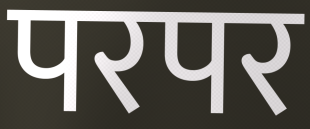
परपर